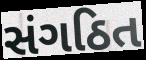
સંગઠિત